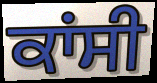
ਕਾਂਸੀ